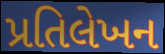
પ્રતિલેખન